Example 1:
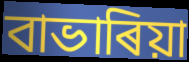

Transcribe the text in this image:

বাভাৰিয়া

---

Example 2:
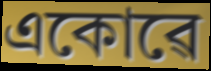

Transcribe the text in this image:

একোৱে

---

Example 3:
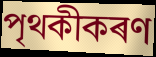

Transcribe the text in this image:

পৃথকীকৰণ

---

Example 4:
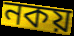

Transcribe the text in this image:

নকয়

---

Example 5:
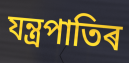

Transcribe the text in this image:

যন্ত্ৰপাতিৰ